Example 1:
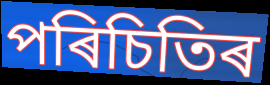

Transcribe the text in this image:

পৰিচিতিৰ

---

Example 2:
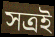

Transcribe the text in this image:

সত্ৰই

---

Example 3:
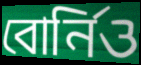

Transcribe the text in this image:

বোৰ্নিও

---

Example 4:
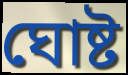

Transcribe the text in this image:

ঘোষ্ট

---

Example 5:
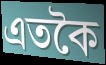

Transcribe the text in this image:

এতকৈ